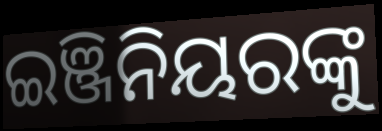
ଇଞ୍ଜିନିୟରଙ୍କୁ